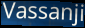
Vassanji